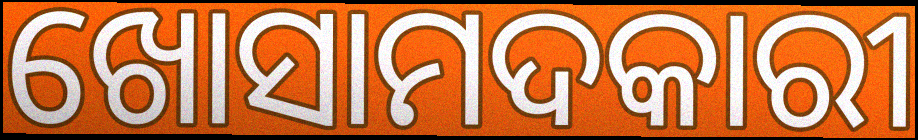
ଖୋସାମଦକାରୀ